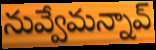
నువ్వేమన్నావ్